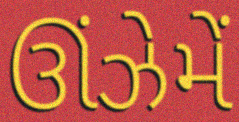
ઊંઝેમેં